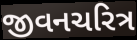
જીવનચરિત્ર